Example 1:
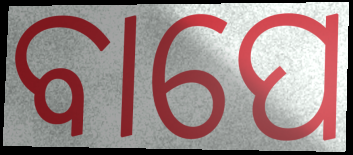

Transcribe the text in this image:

ବାପେ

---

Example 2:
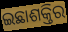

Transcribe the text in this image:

ଇଛାଶକ୍ତିର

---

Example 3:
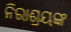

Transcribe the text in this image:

ନିରାଶ୍ରୟଙ୍କ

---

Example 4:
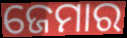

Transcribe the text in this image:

ଜେମାର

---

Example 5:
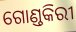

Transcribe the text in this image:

ଗୋଣ୍ଡକିରୀ